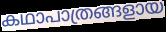
കഥാപാത്രങ്ങളായ